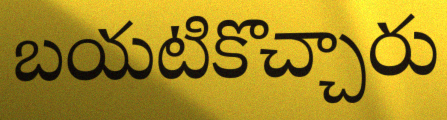
బయటికొచ్చారు